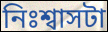
নিঃশ্বাসটা